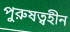
পুরুষত্বহীন